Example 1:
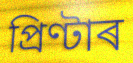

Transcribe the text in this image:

প্ৰিণ্টাৰ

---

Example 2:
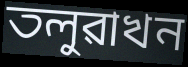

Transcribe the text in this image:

তলুৱাখন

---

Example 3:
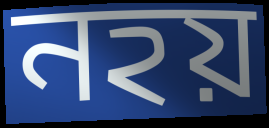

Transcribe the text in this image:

নহয়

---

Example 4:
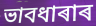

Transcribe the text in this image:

ভাবধাৰাৰ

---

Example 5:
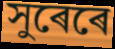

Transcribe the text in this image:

সুৰেৰে